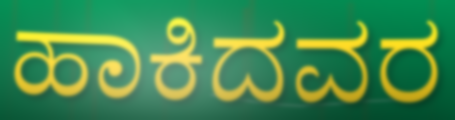
ಹಾಕಿದವರ